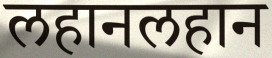
लहानलहान